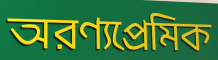
অরণ্যপ্রেমিক